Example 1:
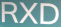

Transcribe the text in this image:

RXD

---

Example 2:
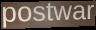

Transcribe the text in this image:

postwar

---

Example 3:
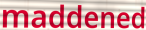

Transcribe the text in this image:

maddened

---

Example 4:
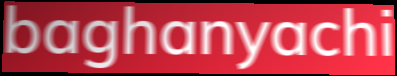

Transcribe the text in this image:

baghanyachi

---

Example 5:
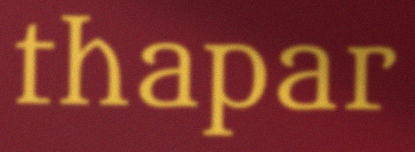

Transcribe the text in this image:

thapar